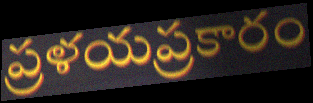
ప్రళయప్రకారం